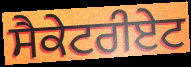
ਸੈਕੇਟਰੀਏਟ